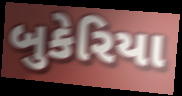
બુકેરિયા